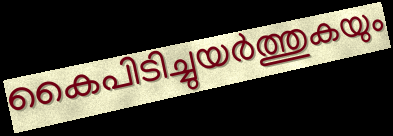
കൈപിടിച്ചുയർത്തുകയും